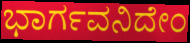
ಭಾರ್ಗವನಿದೇಂ